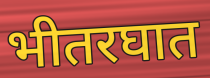
भीतरघात